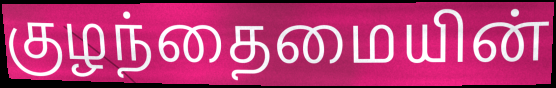
குழந்தைமையின்